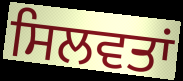
ਸਿਲਵਤਾਂ